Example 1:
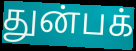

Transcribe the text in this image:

துன்பக்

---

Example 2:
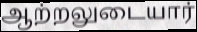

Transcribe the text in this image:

ஆற்றலுடையார்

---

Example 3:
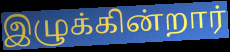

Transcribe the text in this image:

இழுக்கின்றார்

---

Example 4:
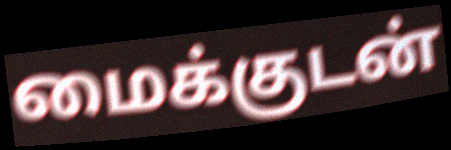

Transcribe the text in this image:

மைக்குடன்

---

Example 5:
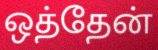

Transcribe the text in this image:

ஒத்தேன்